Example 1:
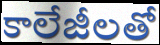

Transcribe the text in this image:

కాలేజీలతో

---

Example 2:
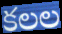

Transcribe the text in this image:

కలల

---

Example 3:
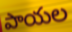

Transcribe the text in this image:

పాయల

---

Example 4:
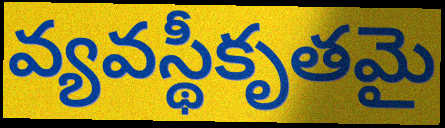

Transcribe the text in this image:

వ్యవస్థీకృతమై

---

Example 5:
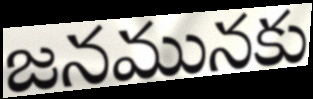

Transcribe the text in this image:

జనమునకు